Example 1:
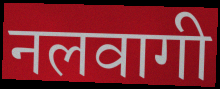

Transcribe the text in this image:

नलवागी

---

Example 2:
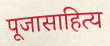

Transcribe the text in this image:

पूजासाहित्य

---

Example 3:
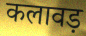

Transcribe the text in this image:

कलावड़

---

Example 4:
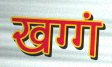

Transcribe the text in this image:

खग्गं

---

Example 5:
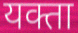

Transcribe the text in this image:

यक्ता